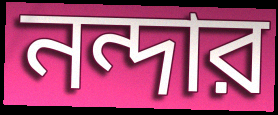
নন্দার